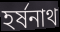
হর্ষনাথ